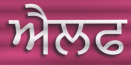
ਐਲਫ